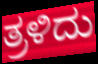
ತ್ರಳಿದು